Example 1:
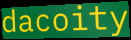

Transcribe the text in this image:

dacoity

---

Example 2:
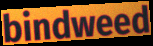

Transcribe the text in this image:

bindweed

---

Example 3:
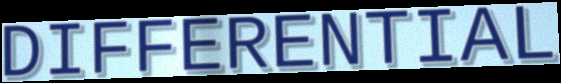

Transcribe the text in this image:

DIFFERENTIAL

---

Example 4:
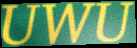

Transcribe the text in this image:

UWU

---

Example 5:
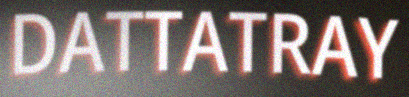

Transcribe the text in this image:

DATTATRAY